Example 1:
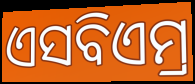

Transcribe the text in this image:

ଏସବିଏମ୍ର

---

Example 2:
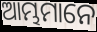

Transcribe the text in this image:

ଆମ୍ଭମାନେ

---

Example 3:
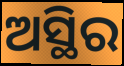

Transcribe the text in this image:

ଅସ୍ଥିର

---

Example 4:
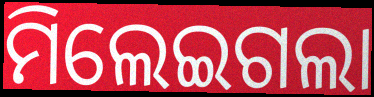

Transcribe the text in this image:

ମିଲେଇଗଲା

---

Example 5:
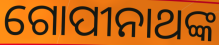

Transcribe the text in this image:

ଗୋପୀନାଥଙ୍କ